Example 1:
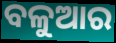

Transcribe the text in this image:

ବଳୁଆର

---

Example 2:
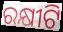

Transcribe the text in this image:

ରକ୍ଷୀଟି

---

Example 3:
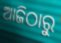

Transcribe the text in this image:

ଆଜିଠାରୁ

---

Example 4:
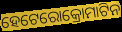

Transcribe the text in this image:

ହେଟେରୋକ୍ରୋମାଟିନ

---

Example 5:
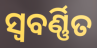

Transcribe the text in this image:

ସ୍ୱବର୍ଣ୍ଣିତ